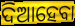
ଦିଆହେବା